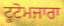
ਟੂਟੋਮਜਾਰਾ